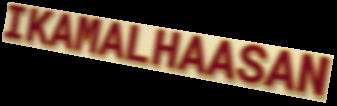
IKAMALHAASAN